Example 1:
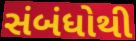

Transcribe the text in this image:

સંબંધોથી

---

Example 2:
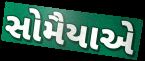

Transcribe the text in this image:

સોમૈયાએ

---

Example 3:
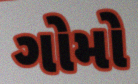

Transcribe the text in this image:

ગોમો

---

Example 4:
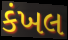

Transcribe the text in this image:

કંખલ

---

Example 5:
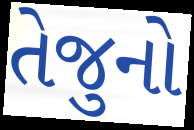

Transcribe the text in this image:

તેજુનો